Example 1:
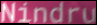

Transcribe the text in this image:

Nindru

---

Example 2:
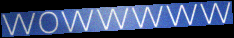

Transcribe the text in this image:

wowwwww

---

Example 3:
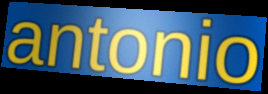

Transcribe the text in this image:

antonio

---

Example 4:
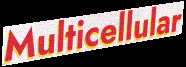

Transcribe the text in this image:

Multicellular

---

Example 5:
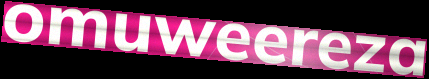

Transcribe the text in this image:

omuweereza